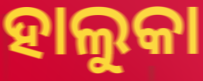
ହାଲୁକା